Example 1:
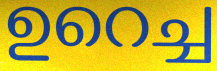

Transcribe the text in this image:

ഉറെച്ച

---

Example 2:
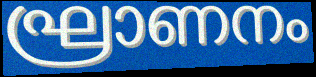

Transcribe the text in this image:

ഘ്രാണനം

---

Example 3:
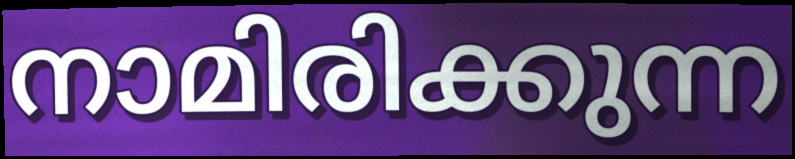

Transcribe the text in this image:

നാമിരിക്കുന്ന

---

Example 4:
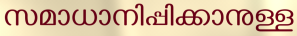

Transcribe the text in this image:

സമാധാനിപ്പിക്കാനുള്ള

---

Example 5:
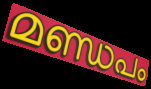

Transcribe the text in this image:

മണ്ഡപം